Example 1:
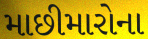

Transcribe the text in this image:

માછીમારોના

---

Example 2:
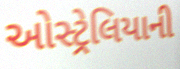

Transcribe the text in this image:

ઓસ્ટ્રેલિયાની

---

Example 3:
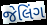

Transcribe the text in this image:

જેલિંગ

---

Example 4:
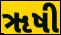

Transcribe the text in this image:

ૠષી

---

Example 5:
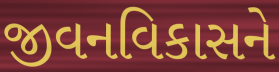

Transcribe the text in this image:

જીવનવિકાસને